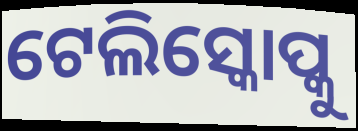
ଟେଲିସ୍କୋପ୍କୁ